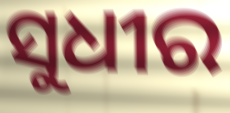
ସୁଧୀର